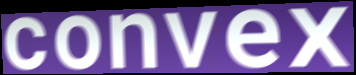
convex